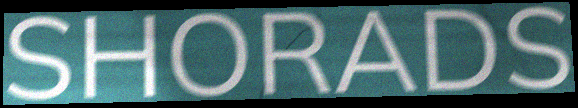
SHORADS